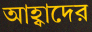
আহ্বাদের